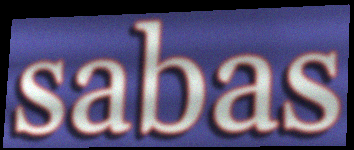
sabas